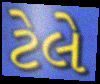
ટેલે